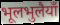
भूलभुलैयाँ